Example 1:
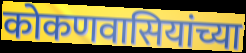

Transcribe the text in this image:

कोकणवासियांच्या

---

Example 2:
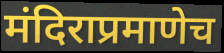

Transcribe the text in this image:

मंदिराप्रमाणेच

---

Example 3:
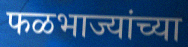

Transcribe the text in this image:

फळभाज्यांच्या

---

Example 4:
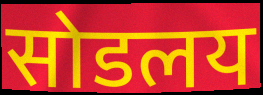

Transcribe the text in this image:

सोडलय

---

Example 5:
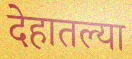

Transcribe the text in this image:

देहातल्या